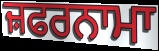
ਜ਼ਫਰਨਾਮਾ